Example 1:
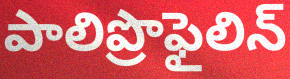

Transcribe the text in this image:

పాలిప్రొఫైలిన్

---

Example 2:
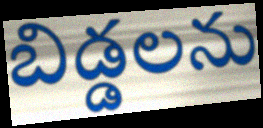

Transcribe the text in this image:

బిడ్డలను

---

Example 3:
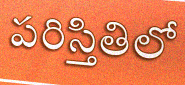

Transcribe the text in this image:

పరిస్తితిలో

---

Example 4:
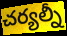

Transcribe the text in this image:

చర్యల్నీ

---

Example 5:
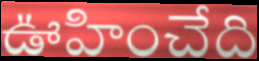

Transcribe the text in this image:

ఊహించేది